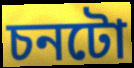
চনটো